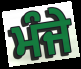
ਮੰਜੇ